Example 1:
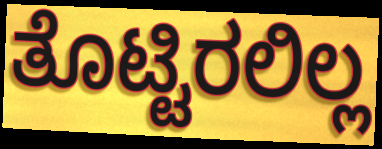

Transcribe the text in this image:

ತೊಟ್ಟಿರಲಿಲ್ಲ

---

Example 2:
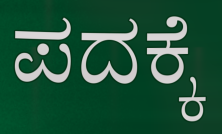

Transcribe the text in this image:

ಪದಕ್ಕೆ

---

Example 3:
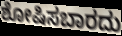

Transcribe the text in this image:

ಶೋಷಿಸಬಾರದು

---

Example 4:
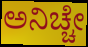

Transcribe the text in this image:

ಅನಿಚ್ಚೇ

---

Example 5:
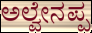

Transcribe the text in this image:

ಅಲ್ವೇನಪ್ಪ